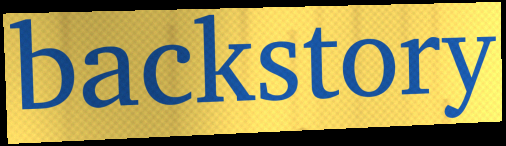
backstory